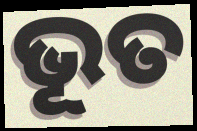
ଭୂତ